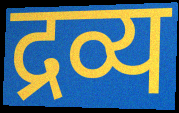
द्रव्य